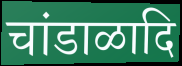
चांडाळादि